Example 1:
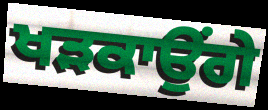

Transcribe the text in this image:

ਖੜਕਾਉਂਗੇ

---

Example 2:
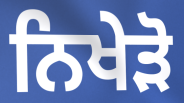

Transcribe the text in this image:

ਨਿਖੇੜੋ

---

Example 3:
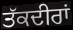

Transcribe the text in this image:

ਤੱਕਦੀਰਾਂ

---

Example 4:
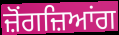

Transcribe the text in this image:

ਜ਼ੋਂਗਜ਼ਿਆਂਗ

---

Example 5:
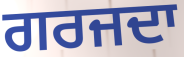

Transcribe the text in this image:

ਗਰਜਦਾ